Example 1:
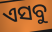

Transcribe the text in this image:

ଏସବୁ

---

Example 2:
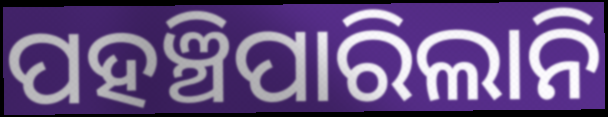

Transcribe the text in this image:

ପହଞ୍ଚିପାରିଲାନି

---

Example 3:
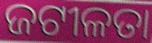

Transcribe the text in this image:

ଜଟୀଳତା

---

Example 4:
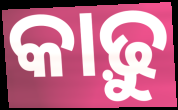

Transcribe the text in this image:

କାଢ଼ୁ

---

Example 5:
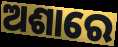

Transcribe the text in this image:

ଅଶାରେ